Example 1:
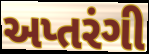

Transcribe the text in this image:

અપ્તરંગી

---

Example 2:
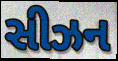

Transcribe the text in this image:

સીઝન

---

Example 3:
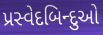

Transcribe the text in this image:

પ્રસ્વેદબિન્દુઓ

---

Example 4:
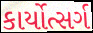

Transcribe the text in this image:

કાર્યોત્સર્ગ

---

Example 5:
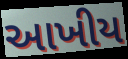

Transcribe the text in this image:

આખીય